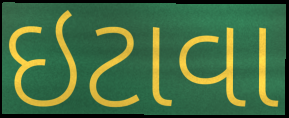
ઇટાવા